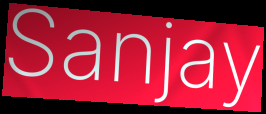
Sanjay